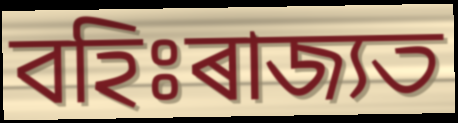
বহিঃৰাজ্যত